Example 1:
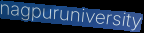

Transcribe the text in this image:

nagpuruniversity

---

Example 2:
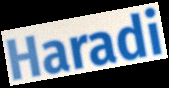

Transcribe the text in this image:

Haradi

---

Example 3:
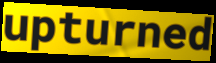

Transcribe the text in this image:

upturned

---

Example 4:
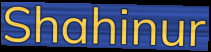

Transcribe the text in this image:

Shahinur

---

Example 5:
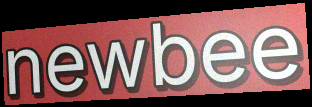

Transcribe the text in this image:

newbee